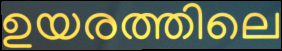
ഉയരത്തിലെ